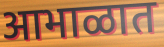
आभाळात